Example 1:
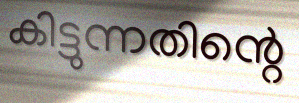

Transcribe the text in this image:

കിട്ടുന്നതിന്റെ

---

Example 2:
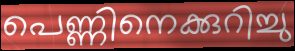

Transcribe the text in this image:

പെണ്ണിനെക്കുറിച്ചു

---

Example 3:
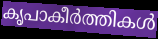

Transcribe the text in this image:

കൃപാകീർത്തികൾ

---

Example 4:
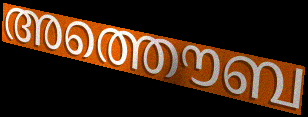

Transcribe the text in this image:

അത്തൌബ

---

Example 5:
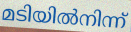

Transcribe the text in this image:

മടിയിൽനിന്ന്